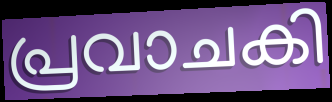
പ്രവാചകി